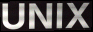
UNIX